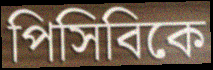
পিসিবিকে